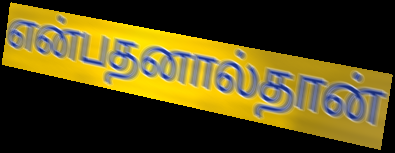
என்பதனால்தான்